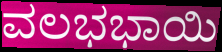
ವಲಭಭಾಯಿ